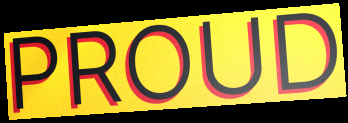
PROUD